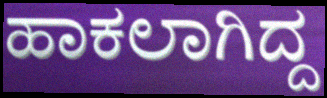
ಹಾಕಲಾಗಿದ್ದ